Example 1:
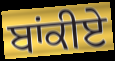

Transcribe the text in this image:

ਬਾਂਕੀਏ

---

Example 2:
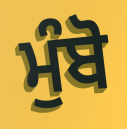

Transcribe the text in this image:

ਮੁੰਬੋ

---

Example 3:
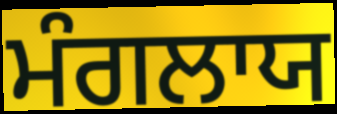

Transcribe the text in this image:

ਮੰਗਲਾਯ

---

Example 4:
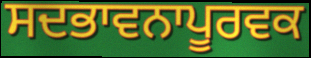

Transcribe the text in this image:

ਸਦਭਾਵਨਾਪੂਰਵਕ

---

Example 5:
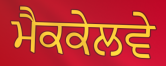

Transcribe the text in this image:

ਮੈਕਕੇਲਵੇ